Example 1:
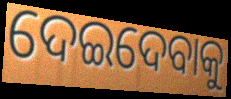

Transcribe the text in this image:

ଦେଇଦେବାକୁ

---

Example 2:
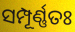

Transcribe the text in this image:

ସମ୍ପୂର୍ଣ୍ଣତଃ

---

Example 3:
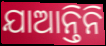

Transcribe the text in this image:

ଯାଆନ୍ତିନି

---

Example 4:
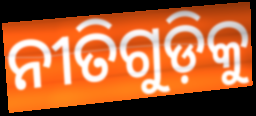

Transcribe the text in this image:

ନୀତିଗୁଡ଼ିକୁ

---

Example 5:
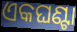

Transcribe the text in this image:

ଏକଘଣ୍ଟା